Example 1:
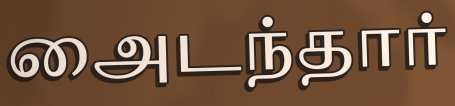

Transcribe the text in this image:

அைடந்தார்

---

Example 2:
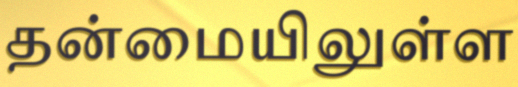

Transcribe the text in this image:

தன்மையிலுள்ள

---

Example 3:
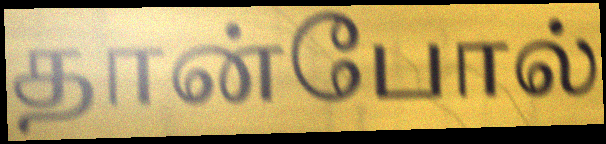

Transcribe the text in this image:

தான்போல்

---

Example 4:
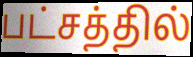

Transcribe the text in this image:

பட்சத்தில்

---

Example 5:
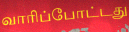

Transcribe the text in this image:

வாரிப்போட்டது